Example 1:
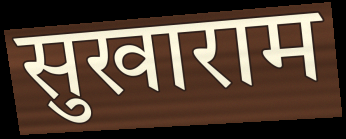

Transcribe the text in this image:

सुखाराम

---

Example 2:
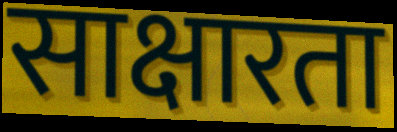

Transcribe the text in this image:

साक्षारता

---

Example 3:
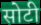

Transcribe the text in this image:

सोटी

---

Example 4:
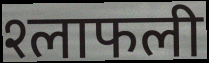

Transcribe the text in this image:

श्लाफली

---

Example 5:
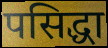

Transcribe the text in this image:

पसिद्धा